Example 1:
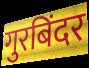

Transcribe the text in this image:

गुरबिंदर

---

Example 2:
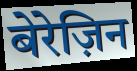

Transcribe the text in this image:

बेरेज़िन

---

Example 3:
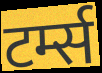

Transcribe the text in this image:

टर्म्स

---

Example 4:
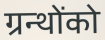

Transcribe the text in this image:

ग्रन्थोंको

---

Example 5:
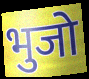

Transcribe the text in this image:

भुजो